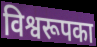
विश्वरूपका